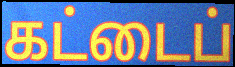
கட்டைப்